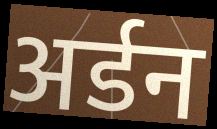
अर्डन